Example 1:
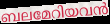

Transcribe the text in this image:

ബലമേറിയവൻ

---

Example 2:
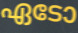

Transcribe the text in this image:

ഏടോ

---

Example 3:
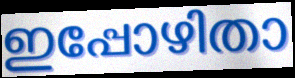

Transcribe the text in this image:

ഇപ്പോഴിതാ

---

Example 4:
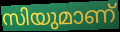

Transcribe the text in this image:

സിയുമാണ്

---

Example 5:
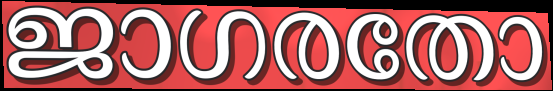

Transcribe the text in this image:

ജാഗരതോ